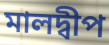
মালদ্বীপ